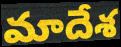
మాదేశ